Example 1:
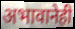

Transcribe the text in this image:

अभावानेही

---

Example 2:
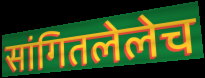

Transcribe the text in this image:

सांगितलेलेच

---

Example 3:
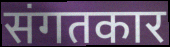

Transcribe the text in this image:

संगतकार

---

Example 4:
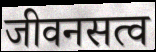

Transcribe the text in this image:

जीवनसत्व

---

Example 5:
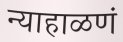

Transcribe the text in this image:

न्याहाळणं